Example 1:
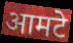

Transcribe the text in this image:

आमटे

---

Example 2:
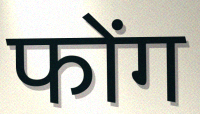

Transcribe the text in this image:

फोंग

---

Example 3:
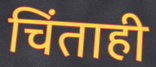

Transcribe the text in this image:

चिंताही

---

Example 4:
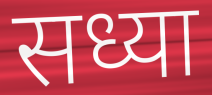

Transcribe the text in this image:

सध्या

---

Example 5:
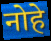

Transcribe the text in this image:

नोहे